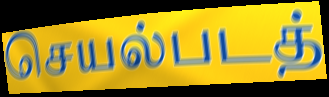
செயல்படத்